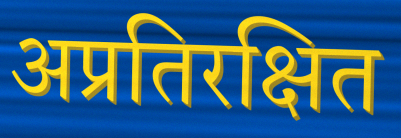
अप्रतिरक्षित